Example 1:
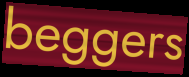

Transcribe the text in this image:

beggers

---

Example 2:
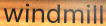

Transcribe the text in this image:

windmill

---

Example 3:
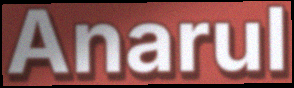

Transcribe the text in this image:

Anarul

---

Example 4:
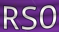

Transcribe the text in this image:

RSO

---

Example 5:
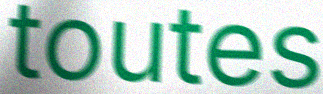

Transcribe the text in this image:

toutes